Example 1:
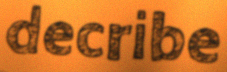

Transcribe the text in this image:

decribe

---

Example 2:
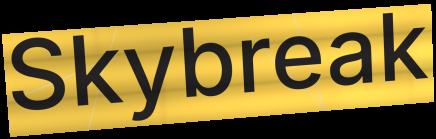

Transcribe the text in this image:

Skybreak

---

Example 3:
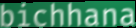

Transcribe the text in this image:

bichhana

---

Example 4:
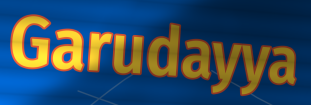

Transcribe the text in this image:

Garudayya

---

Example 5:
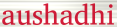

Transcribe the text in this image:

aushadhi